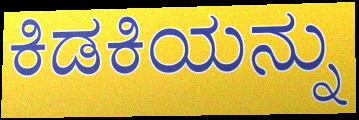
ಕಿಡಕಿಯನ್ನು